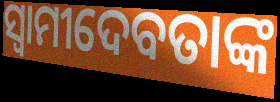
ସ୍ୱାମୀଦେବତାଙ୍କ